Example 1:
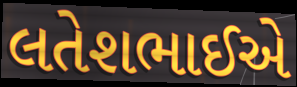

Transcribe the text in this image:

લતેશભાઈએ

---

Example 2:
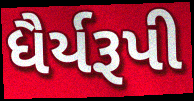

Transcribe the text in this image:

ધૈર્યરૂપી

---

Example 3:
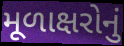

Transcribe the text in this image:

મૂળાક્ષરોનું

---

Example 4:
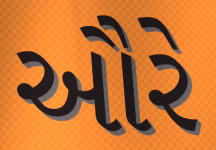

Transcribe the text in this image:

ઔરે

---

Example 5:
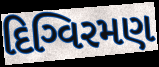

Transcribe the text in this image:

દિગ્વિરમણ